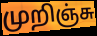
முறிஞ்சு